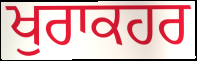
ਖੁਰਾਕਹਰ